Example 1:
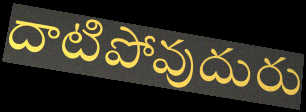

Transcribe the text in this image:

దాటిపోవుదురు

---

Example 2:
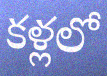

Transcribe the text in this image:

కళ్లలో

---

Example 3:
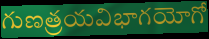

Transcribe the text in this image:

గుణత్రయవిభాగయోగో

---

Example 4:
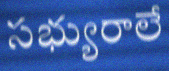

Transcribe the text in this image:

సభ్యురాలే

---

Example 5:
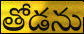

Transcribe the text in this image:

తోడను